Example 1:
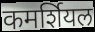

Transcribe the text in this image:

कमर्शियल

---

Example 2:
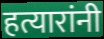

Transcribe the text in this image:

हत्यारांनी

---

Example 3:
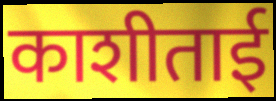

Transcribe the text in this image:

काशीताई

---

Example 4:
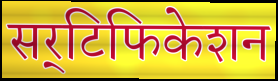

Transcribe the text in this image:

सर्टिफिकेशन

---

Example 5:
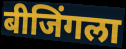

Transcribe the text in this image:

बीजिंगला